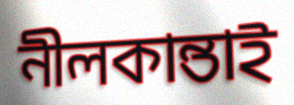
নীলকান্তাই